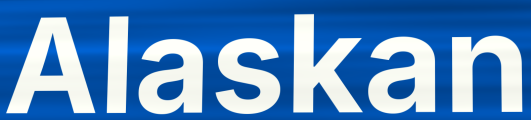
Alaskan